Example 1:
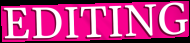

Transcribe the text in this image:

EDITING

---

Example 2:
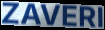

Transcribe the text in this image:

ZAVERI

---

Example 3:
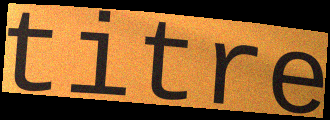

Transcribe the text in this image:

titre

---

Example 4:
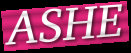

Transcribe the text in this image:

ASHE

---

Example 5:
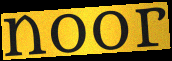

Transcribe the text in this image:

noor